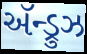
ઍન્ડ્રુઝ